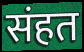
संहत